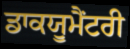
ਡਾਕਯੂਮੈਂਟਰੀ